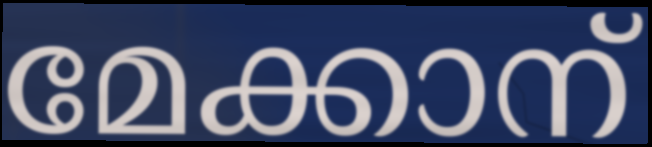
മേക്കാന്